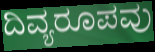
ದಿವ್ಯರೂಪವು